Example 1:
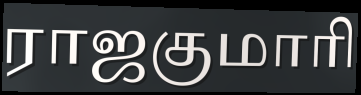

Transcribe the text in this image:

ராஜகுமாரி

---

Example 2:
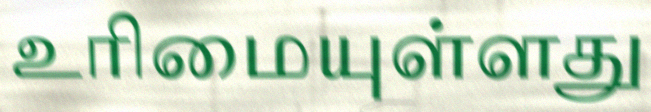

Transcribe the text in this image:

உரிமையுள்ளது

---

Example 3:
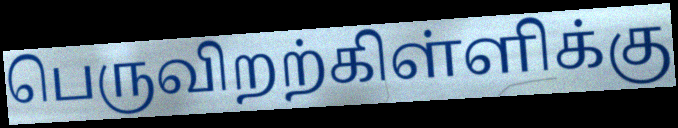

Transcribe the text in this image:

பெருவிறற்கிள்ளிக்கு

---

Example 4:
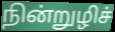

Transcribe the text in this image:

நின்றுழிச்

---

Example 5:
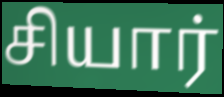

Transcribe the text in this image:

சியார்